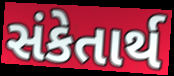
સંકેતાર્થ